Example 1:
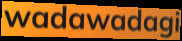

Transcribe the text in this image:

wadawadagi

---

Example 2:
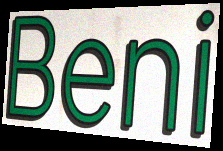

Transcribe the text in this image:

Beni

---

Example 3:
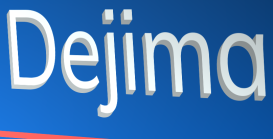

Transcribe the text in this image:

Dejima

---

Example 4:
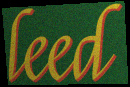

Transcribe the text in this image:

leed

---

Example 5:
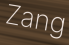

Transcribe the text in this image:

Zang